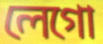
লেগো